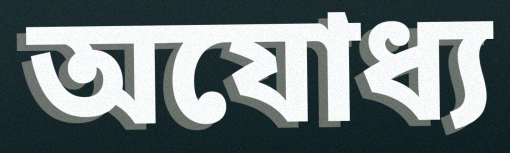
অযোধ্য